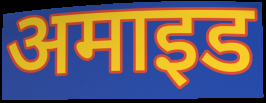
अमाइड